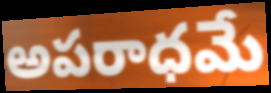
అపరాధమే